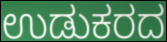
ಉಡುಕರದ